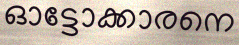
ഓട്ടോക്കാരനെ